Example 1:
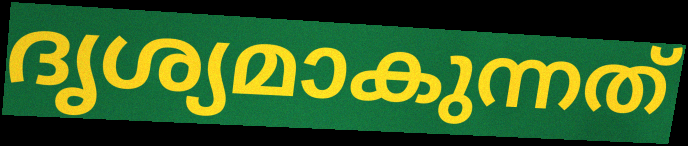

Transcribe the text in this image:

ദൃശ്യമാകുന്നത്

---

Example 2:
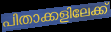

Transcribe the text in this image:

പിതാക്കളിലേക്ക്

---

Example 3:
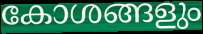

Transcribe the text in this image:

കോശങ്ങളും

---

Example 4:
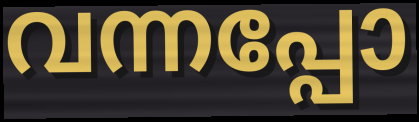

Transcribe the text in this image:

വന്നപ്പോ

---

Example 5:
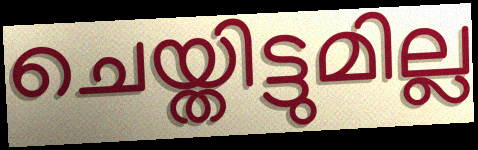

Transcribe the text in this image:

ചെയ്തിട്ടുമില്ല